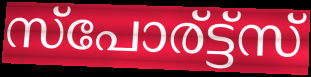
സ്പോര്ട്ട്സ്